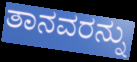
ತಾನವರನ್ನು